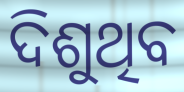
ଦିଶୁଥିବ